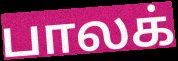
பாலக்